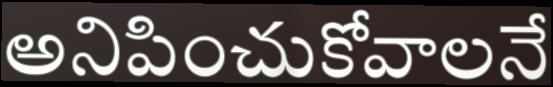
అనిపించుకోవాలనే